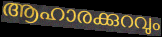
ആഹാരക്കുറവും